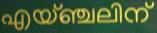
എയ്ഞ്ചലിന്